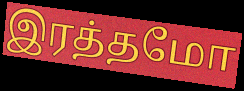
இரத்தமோ